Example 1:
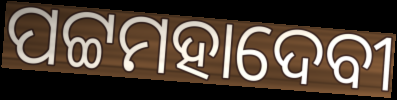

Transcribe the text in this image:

ପଟ୍ଟମହାଦେବୀ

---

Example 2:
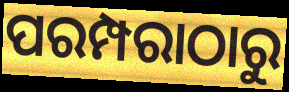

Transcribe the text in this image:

ପରମ୍ପରାଠାରୁ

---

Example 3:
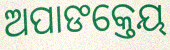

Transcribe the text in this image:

ଅପାଙକ୍ତେୟ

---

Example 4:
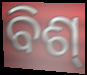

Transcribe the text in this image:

ବିଶ୍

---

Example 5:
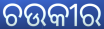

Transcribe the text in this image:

ଚଉକୀର